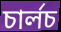
চাৰ্লচ